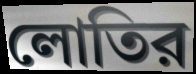
লোতির